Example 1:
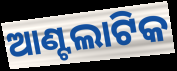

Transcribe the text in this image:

ଆଣ୍ଟଲାଟିକ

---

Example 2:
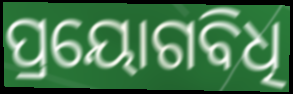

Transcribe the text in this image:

ପ୍ରୟୋଗବିଧି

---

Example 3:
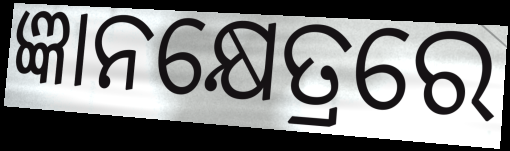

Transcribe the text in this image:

ଜ୍ଞାନକ୍ଷେତ୍ରରେ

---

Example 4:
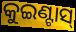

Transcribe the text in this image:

କୁଇଣ୍ଟାସ୍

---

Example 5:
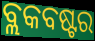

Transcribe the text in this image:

ବ୍ଲକବଷ୍ଟର